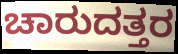
ಚಾರುದತ್ತರ